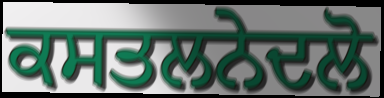
ਕਸਤਲਨੇਦਲੋ